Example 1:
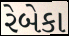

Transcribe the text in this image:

રેબેકા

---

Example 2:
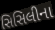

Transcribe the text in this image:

સિસિલીના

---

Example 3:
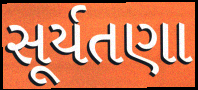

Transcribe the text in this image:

સૂર્યતણા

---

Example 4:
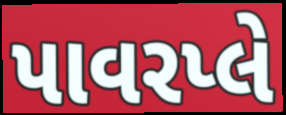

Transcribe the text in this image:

પાવરપ્લે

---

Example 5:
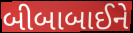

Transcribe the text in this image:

બીબાબાઈને